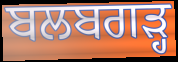
ਬਲਬਗੜ੍ਹ